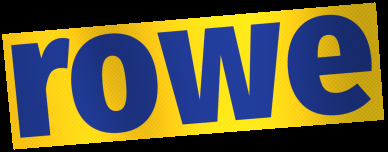
rowe